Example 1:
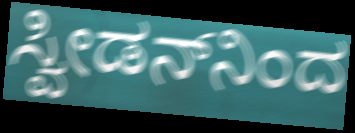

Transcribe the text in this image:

ಸ್ವೀಡನ್‌ನಿಂದ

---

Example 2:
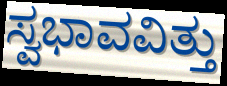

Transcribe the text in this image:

ಸ್ವಭಾವವಿತ್ತು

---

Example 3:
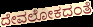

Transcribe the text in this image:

ದೇವಲೋಕದಂತೆ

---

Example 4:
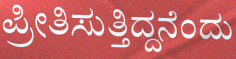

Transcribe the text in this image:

ಪ್ರೀತಿಸುತ್ತಿದ್ದನೆಂದು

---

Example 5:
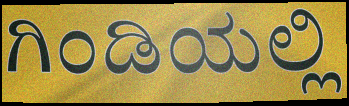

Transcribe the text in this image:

ಗಿಂಡಿಯಲ್ಲಿ